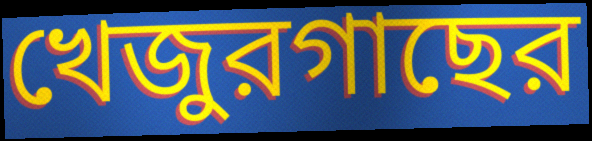
খেজুরগাছের